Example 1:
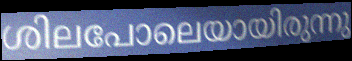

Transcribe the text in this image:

ശിലപോലെയായിരുന്നു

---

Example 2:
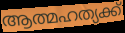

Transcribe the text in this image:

ആത്മഹത്യക്ക്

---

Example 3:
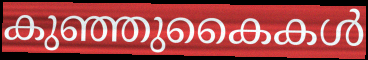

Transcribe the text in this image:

കുഞ്ഞുകൈകൾ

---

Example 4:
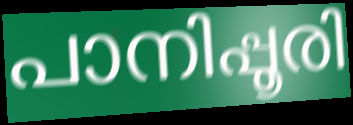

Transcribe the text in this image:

പാനിപ്പൂരി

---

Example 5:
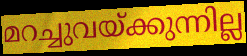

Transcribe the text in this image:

മറച്ചുവയ്ക്കുന്നില്ല